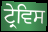
ਟ੍ਰੇਵਿਸ